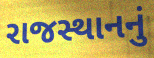
રાજસ્થાનનું